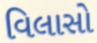
વિલાસો